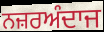
ਨਜ਼ਰਅੰਦਾਜ